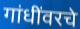
गांधींवरचे